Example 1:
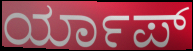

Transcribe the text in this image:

ರ್ಯಾಪ್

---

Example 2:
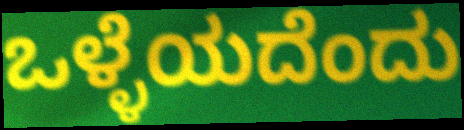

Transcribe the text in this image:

ಒಳ್ಳೆಯದೆಂದು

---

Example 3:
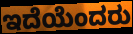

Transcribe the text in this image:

ಇದೆಯೆಂದರು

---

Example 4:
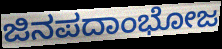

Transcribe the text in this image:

ಜಿನಪದಾಂಭೋಜ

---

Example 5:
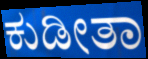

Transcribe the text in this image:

ಕುಡೀತಾ